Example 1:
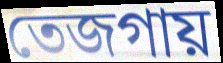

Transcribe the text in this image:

তেজগায়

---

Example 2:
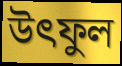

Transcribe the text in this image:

উৎফুল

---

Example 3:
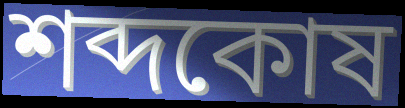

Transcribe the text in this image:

শব্দকোষ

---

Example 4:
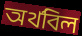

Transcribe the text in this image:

অর্থবিল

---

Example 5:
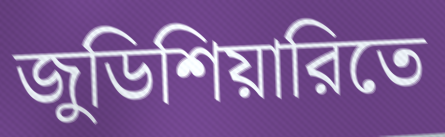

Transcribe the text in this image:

জুডিশিয়ারিতে